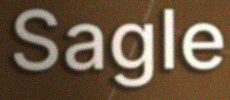
Sagle